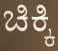
ಚಿಕ್ಕಿ